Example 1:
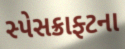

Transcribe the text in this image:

સ્પેસક્રાફ્ટના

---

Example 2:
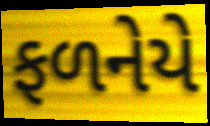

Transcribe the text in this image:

ફળનેયે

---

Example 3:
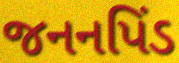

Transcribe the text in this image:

જનનપિંડ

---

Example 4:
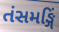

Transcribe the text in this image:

તંસમઙ્ગિં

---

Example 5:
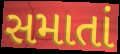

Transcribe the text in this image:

સમાતાં